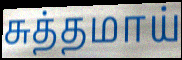
சுத்தமாய்